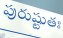
పురుష్టుతః